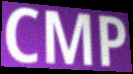
CMP